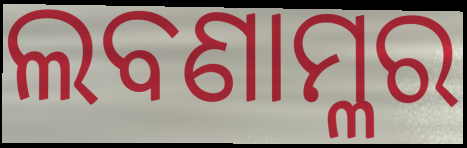
ଲବଣାମ୍ଳର